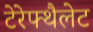
टेरेफ्थैलेट